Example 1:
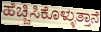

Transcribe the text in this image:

ಹೆಚ್ಚಿಸಿಕೊಳ್ಳುತ್ತಾನೆ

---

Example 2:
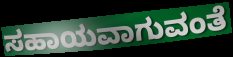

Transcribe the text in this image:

ಸಹಾಯವಾಗುವಂತೆ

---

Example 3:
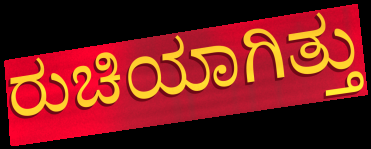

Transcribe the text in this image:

ರುಚಿಯಾಗಿತ್ತು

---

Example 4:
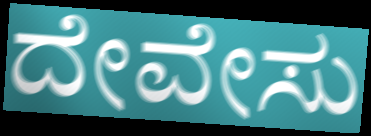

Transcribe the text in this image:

ದೇವೇಸು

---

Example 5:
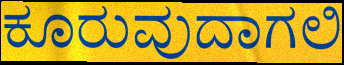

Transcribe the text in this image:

ಕೂರುವುದಾಗಲಿ